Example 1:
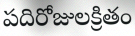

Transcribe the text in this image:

పదిరోజులక్రితం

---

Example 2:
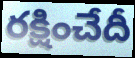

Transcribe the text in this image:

రక్షించేదీ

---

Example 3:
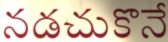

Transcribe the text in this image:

నడచుకొనే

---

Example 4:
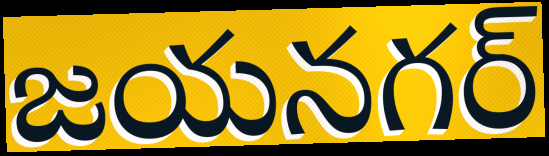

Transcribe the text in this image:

జయనగర్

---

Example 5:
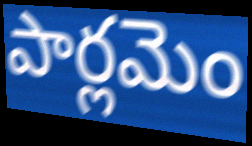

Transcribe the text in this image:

పార్లమెం